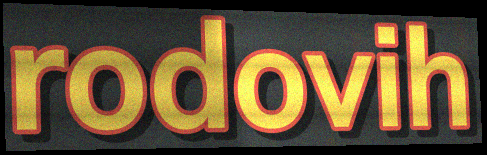
rodovih